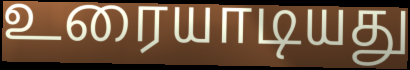
உரையாடியது